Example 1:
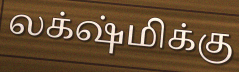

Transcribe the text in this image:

லக்‌ஷ்மிக்கு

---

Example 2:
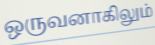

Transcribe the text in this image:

ஒருவனாகிலும்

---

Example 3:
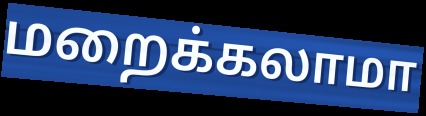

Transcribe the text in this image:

மறைக்கலாமா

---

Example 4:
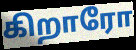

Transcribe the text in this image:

கிறாரோ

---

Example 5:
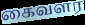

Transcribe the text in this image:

கைவளர